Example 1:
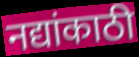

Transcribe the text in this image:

नद्यांकाठी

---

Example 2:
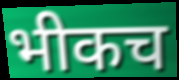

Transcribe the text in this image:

भीकच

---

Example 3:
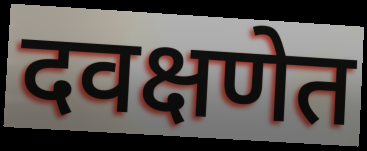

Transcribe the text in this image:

दवक्षणेत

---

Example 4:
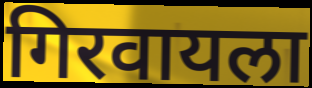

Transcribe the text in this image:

गिरवायला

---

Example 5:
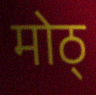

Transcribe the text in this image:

मोठ्